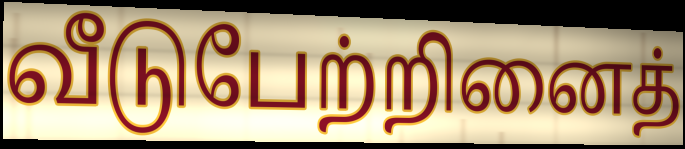
வீடுபேற்றினைத்